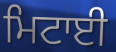
ਮਿਟਾਈ